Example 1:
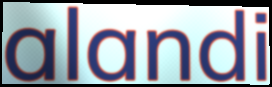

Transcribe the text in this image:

alandi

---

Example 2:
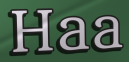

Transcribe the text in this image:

Haa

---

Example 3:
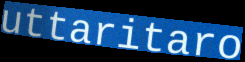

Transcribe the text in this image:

uttaritaro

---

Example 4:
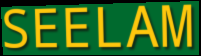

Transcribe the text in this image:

SEELAM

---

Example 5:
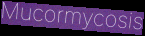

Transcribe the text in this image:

Mucormycosis